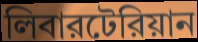
লিবারটেরিয়ান